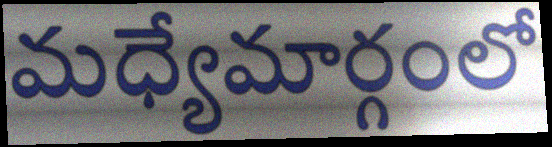
మధ్యేమార్గంలో